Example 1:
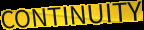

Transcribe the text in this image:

CONTINUITY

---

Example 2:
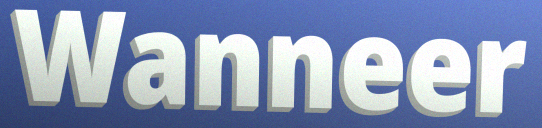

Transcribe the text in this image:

Wanneer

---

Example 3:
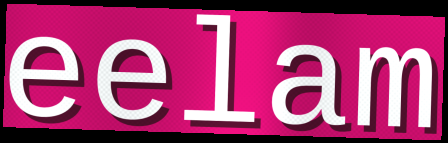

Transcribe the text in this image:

eelam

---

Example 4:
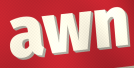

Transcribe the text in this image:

awn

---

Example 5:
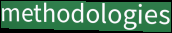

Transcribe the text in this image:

methodologies